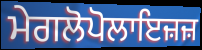
ਮੇਗਲੋਪੋਲਾਇਜ਼ਜ਼